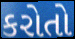
કરોતો